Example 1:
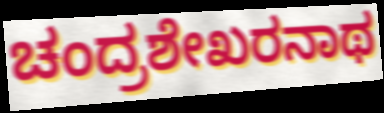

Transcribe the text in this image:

ಚಂದ್ರಶೇಖರನಾಥ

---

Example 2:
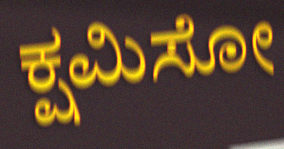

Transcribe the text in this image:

ಕ್ಷಮಿಸೋ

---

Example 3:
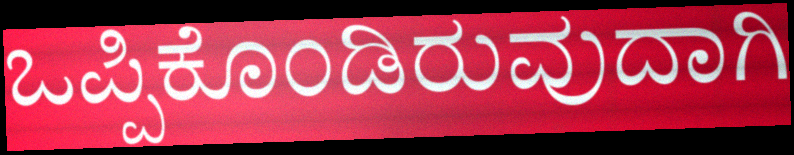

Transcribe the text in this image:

ಒಪ್ಪಿಕೊಂಡಿರುವುದಾಗಿ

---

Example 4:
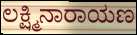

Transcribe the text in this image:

ಲಕ್ಷ್ಮಿನಾರಾಯಣ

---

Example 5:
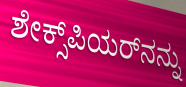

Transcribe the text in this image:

ಶೇಕ್ಸ್‌ಪಿಯರ್‌ನನ್ನು